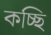
কচ্ছি